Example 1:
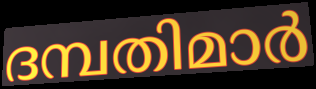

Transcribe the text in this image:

ദമ്പതിമാർ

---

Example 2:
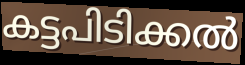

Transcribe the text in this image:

കട്ടപിടിക്കൽ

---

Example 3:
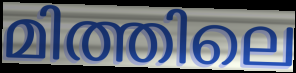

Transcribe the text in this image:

മിത്തിലെ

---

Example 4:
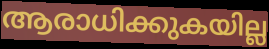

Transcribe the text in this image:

ആരാധിക്കുകയില്ല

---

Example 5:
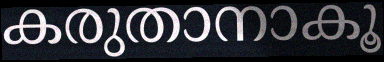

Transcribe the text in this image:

കരുതാനാകൂ